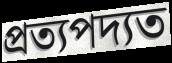
প্রত্যপদ্যত